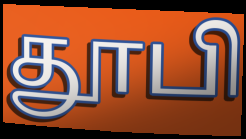
தூபி